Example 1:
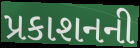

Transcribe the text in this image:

પ્રકાશનની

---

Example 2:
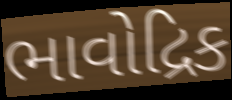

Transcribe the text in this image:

ભાવોદ્રિક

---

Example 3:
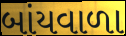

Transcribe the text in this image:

બાંયવાળા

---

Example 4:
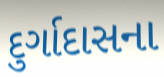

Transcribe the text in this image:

દુર્ગાદાસના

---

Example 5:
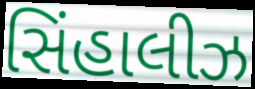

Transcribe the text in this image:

સિંહાલીઝ